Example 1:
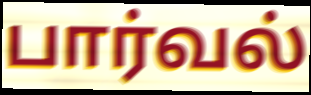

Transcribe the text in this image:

பார்வல்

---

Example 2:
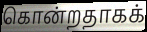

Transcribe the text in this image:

கொன்றதாகக்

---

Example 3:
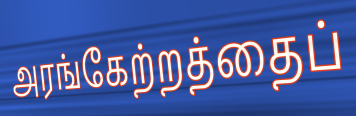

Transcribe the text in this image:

அரங்கேற்றத்தைப்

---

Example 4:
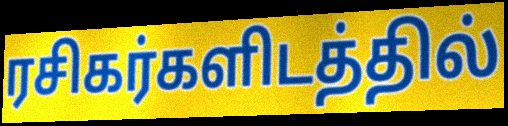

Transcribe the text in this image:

ரசிகர்களிடத்தில்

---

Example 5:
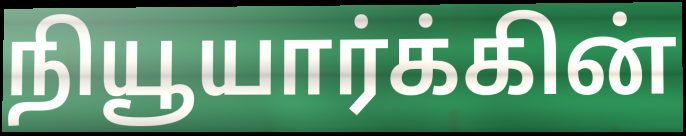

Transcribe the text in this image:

நியூயார்க்கின்